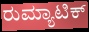
ರುಮ್ಯಾಟಿಕ್